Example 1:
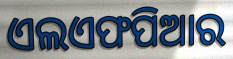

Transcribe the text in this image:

ଏଲଏଫପିଆର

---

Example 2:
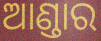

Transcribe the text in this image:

ଆଣ୍ଡାର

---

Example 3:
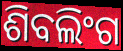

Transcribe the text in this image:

ଶିବଲିଂଗ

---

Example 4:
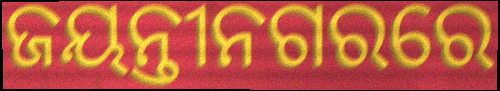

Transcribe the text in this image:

ଜୟନ୍ତୀନଗରରେ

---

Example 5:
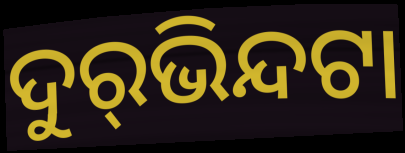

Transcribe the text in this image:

ଦୁର୍‌ଭିନ୍ଦଟା